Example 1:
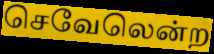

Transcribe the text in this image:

செவேலென்ற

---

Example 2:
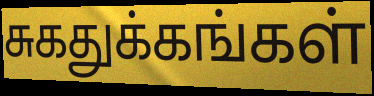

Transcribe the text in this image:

சுகதுக்கங்கள்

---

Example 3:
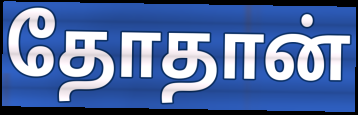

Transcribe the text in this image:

தோதான்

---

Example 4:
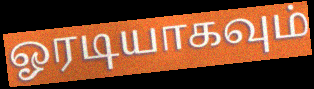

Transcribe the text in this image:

ஓரடியாகவும்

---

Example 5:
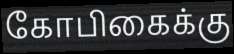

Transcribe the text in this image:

கோபிகைக்கு